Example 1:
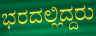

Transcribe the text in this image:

ಭರದಲ್ಲಿದ್ದರು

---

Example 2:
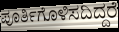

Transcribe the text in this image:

ಪೂರ್ತಿಗೊಳಿಸದಿದ್ದರೆ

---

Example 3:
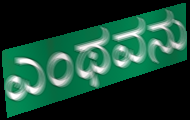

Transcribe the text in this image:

ಎಂಥವನು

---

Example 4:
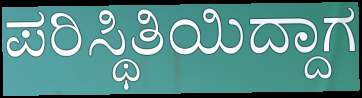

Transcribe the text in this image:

ಪರಿಸ್ಥಿತಿಯಿದ್ದಾಗ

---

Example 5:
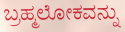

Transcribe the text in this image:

ಬ್ರಹ್ಮಲೋಕವನ್ನು